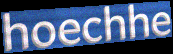
hoechhe